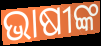
ଭାଷୀଙ୍କ